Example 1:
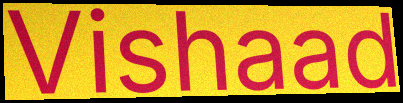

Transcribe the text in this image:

Vishaad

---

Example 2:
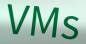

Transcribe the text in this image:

VMs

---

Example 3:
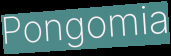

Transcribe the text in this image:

Pongomia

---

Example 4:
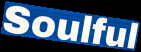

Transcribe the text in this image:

Soulful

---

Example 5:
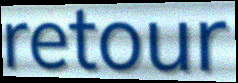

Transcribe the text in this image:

retour